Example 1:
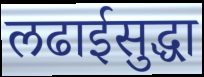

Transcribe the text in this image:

लढाईसुद्धा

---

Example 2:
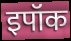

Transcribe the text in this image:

इपॉक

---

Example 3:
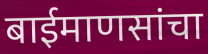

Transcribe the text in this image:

बाईमाणसांचा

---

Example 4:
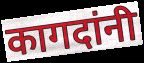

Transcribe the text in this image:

कागदांनी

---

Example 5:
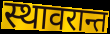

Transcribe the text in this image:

स्थावरान्त